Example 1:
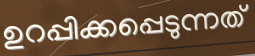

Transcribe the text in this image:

ഉറപ്പിക്കപ്പെടുന്നത്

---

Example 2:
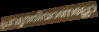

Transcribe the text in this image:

പ്രവൃത്തിയാണല്ലോ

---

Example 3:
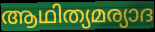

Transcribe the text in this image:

ആഥിത്യമര്യാദ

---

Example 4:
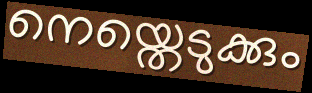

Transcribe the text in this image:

നെയ്തെടുക്കും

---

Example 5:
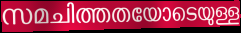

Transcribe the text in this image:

സമചിത്തതയോടെയുള്ള